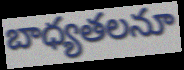
బాధ్యతలనూ